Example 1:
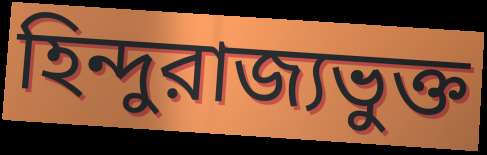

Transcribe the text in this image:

হিন্দুরাজ্যভুক্ত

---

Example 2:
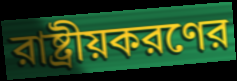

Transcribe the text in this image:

রাষ্ট্রীয়করণের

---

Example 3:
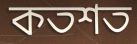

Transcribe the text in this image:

কতশত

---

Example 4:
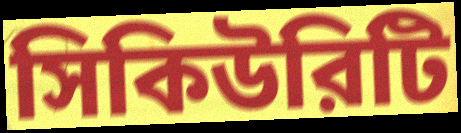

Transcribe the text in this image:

সিকিউরিটি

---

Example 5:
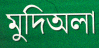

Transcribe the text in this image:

মুদিঅলা